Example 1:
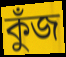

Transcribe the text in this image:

কুঁজ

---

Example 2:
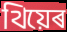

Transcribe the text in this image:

থিয়েৰ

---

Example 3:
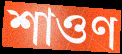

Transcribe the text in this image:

শাওণ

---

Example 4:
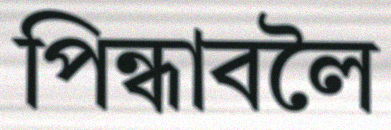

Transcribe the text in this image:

পিন্ধাবলৈ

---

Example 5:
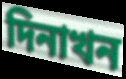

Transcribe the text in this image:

দিনাখন